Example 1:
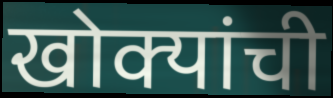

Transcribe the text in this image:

खोक्यांची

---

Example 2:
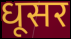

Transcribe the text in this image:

धूसर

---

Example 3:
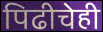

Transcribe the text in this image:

पिढीचेही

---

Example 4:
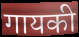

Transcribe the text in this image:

गायकी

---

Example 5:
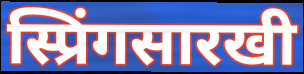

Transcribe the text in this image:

स्प्रिंगसारखी